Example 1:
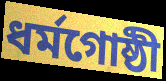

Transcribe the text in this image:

ধৰ্মগোষ্ঠী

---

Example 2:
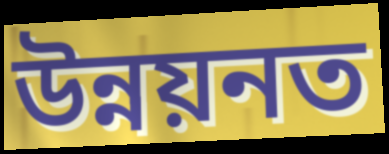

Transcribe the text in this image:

উন্নয়নত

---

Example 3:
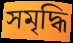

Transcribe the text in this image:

সমৃদ্ধি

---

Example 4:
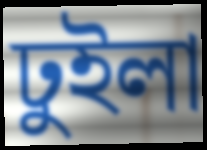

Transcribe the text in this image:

ঢুইলা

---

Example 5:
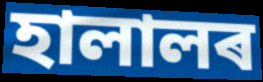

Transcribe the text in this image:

হালালৰ